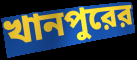
খানপুরের